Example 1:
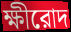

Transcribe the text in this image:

ক্ষীরোদ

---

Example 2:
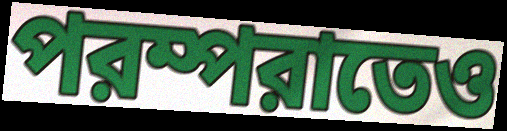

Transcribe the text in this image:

পরম্পরাতেও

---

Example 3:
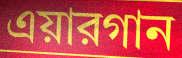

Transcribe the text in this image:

এয়ারগান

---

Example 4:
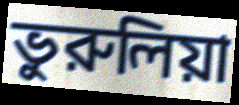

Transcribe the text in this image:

ভুরুলিয়া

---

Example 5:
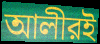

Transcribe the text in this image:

আলীরই